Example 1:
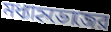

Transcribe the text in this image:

মধ্যাহ্নভোজের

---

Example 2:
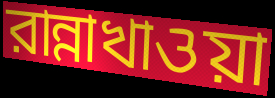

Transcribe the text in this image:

রান্নাখাওয়া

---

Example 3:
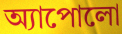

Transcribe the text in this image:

অ্যাপোলো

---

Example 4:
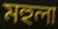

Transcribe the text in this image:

মহুলা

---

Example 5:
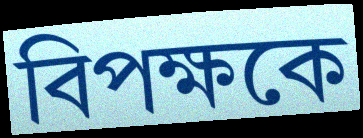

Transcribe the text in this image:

বিপক্ষকে